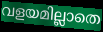
വളയമില്ലാതെ